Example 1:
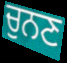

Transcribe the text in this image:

ਚੁਨਣ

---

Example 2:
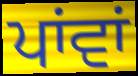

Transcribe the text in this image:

ਪਾਂਵਾਂ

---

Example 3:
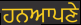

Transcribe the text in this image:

ਹਨਆਪਣੇ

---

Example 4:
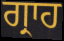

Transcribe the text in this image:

ਗ੍ਰਾਹ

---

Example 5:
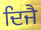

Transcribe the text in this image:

ਦਿਜੈ